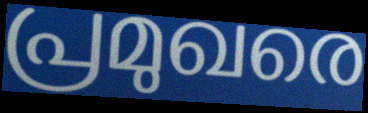
പ്രമുഖരെ